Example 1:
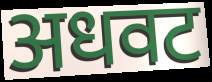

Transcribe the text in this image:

अधवट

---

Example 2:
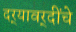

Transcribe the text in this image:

दर्यावर्दींचे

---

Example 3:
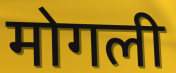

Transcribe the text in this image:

मोगली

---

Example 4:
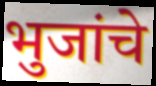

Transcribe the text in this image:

भुजांचे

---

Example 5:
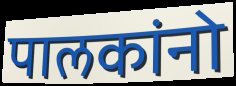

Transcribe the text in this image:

पालकांनो